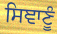
ਸਿਞਾਣੂੰ